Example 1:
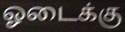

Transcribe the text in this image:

ஓடைக்கு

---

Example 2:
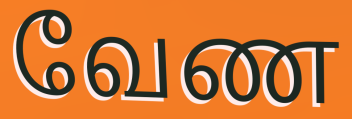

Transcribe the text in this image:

வேண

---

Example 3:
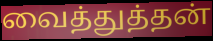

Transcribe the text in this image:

வைத்துத்தன்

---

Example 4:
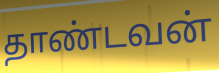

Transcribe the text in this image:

தாண்டவன்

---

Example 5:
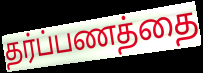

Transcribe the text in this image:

தர்ப்பணத்தை